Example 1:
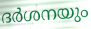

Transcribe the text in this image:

ദർശനയും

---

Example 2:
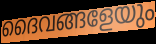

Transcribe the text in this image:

ദൈവങ്ങളേയും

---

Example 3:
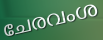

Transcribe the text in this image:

ചേരവംശ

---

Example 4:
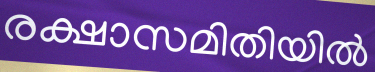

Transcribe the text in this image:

രക്ഷാസമിതിയിൽ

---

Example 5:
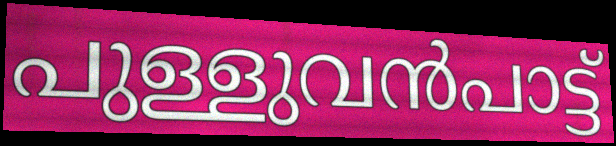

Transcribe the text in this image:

പുള്ളുവൻപാട്ട്